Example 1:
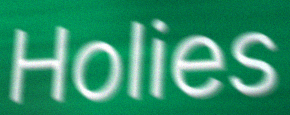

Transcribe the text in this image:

Holies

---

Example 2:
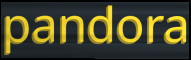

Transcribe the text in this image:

pandora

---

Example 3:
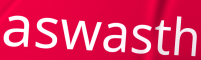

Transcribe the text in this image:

aswasth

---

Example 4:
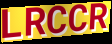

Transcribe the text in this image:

LRCCR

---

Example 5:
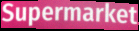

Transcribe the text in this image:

Supermarket